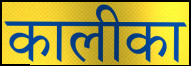
कालीका